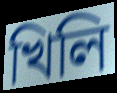
খিলি